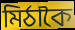
মিঠাকৈ